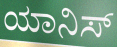
ಯಾನಿಸ್